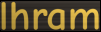
lhram